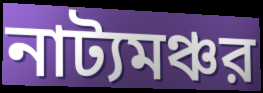
নাট্যমঞ্চর